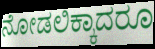
ನೋಡಲಿಕ್ಕಾದರೂ